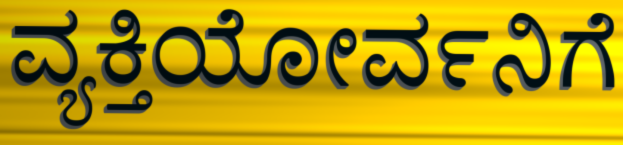
ವ್ಯಕ್ತಿಯೋರ್ವನಿಗೆ